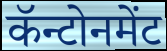
कॅन्टोनमेंट